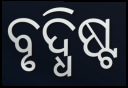
ବୃଦ୍ଧିଷ୍ଟ